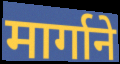
मार्गाने